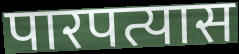
पारपत्यास